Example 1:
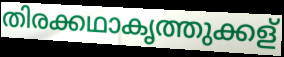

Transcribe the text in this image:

തിരക്കഥാകൃത്തുക്കള്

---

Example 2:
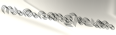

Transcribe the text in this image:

സംരംഭങ്ങളിലേക്കും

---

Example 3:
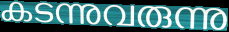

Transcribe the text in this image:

കടന്നുവരുന്നു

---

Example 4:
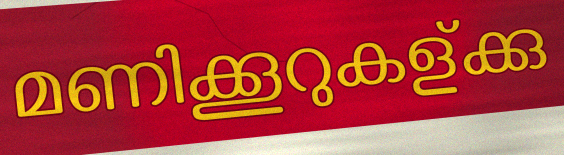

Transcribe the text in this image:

മണിക്കൂറുകള്ക്കു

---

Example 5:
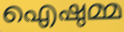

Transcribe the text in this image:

ഐഷുമ്മ